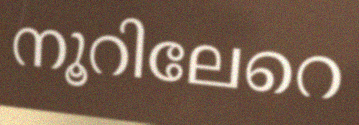
നൂറിലേറെ